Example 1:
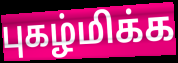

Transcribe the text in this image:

புகழ்மிக்க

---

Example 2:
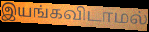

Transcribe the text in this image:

இயங்கவிடாமல்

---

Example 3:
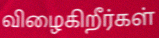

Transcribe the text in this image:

விழைகிறீர்கள்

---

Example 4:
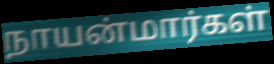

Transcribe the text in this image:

நாயன்மார்கள்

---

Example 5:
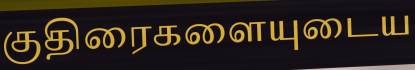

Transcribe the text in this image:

குதிரைகளையுடைய